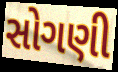
સોગણી